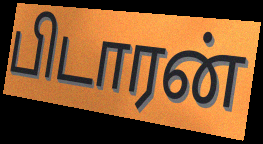
பிடாரன்